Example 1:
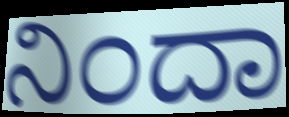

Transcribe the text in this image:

ನಿಂದಾ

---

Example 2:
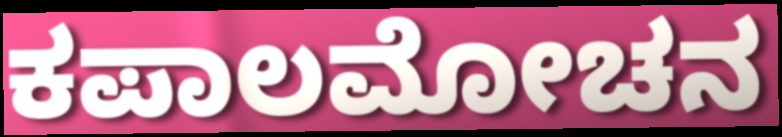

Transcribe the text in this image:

ಕಪಾಲಮೋಚನ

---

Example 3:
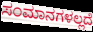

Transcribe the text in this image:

ಸಂಮಾನಗಳಲ್ಲದೆ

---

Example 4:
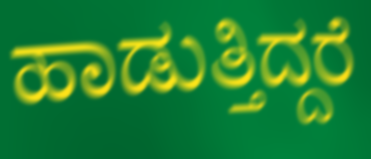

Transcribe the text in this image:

ಹಾಡುತ್ತಿದ್ದರೆ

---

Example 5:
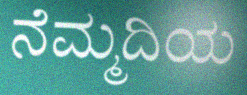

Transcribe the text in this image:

ನೆಮ್ಮದಿಯ